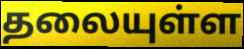
தலையுள்ள